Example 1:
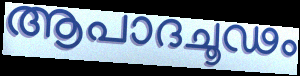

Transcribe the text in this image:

ആപാദചൂഢം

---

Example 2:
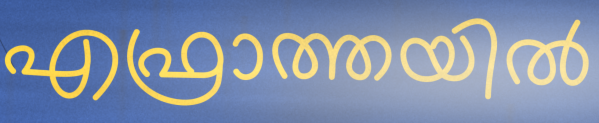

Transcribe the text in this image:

എഫ്രാത്തയിൽ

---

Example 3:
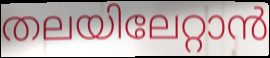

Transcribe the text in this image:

തലയിലേറ്റാൻ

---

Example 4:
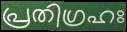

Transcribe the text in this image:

പ്രതിഗ്രഹഃ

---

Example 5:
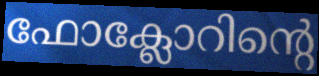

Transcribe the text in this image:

ഫോക്ലോറിന്റെ